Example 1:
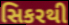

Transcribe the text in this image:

સિકરથી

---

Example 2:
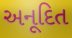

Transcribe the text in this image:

અનૂદિત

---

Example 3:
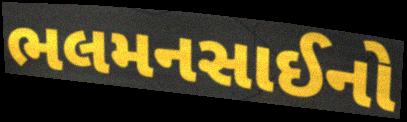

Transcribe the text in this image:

ભલમનસાઈનો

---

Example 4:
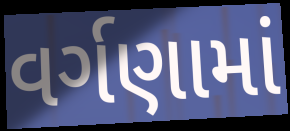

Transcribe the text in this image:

વર્ગણામાં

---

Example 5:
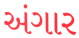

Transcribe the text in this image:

અંગાર